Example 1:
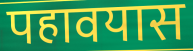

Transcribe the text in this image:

पहावयास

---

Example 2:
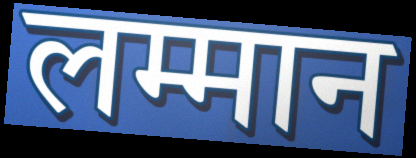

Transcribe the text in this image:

लम्मान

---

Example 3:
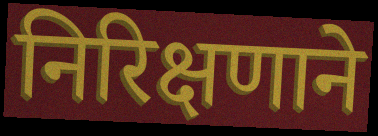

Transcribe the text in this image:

निरिक्षणाने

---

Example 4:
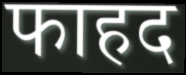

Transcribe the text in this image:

फाहद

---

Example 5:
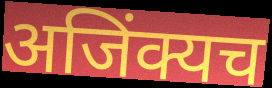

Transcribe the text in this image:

अजिंक्यच